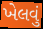
ખેલવું